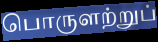
பொருளற்றுப்